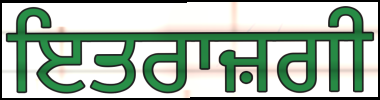
ਇਤਰਾਜ਼ਗੀ